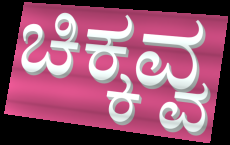
ಚಿಕ್ಕವ್ವ